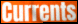
Currents